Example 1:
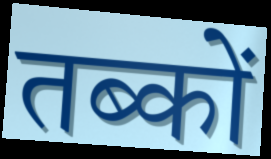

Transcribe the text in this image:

तब्कों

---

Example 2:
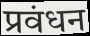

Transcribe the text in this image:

प्रवंधन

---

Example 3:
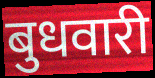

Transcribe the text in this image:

बुधवारी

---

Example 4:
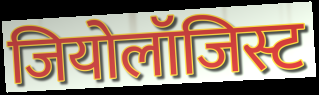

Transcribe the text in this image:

जियोलॉजिस्ट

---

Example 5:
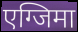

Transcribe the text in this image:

एग्जिमा